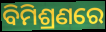
ବିମିଶ୍ରଣରେ